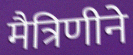
मैत्रिणीने